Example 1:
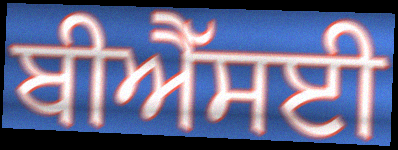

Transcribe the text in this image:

ਬੀਐੱਸਈ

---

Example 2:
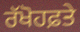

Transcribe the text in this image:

ਰੱਖੋਹਫ਼ਤੇ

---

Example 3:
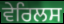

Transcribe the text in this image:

ਵੇਰਿਲਸ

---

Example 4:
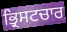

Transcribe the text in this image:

ਭ੍ਰਿਸਟਚਾਰ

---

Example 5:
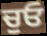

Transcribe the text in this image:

ਚੁਓ